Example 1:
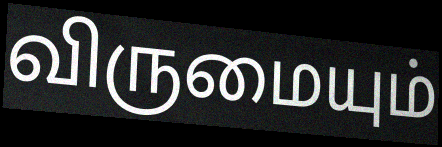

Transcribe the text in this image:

விருமையும்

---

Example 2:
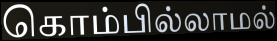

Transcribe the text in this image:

கொம்பில்லாமல்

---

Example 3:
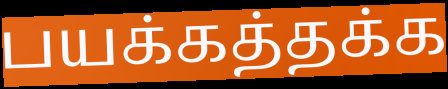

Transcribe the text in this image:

பயக்கத்தக்க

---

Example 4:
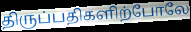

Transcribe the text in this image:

திருப்பதிகளிற்போலே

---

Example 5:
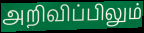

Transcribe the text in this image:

அறிவிப்பிலும்